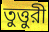
তুত্তুরী